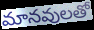
మానవులతో